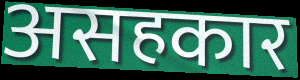
असहकार